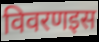
विवरणइस